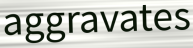
aggravates